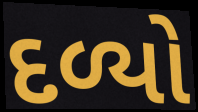
દળ્યો